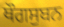
ਥੌਗਸੁਬਨ